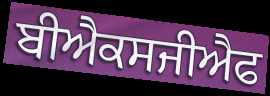
ਬੀਐਕਸਜੀਐਫ